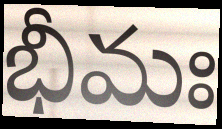
భీమః